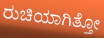
ರುಚಿಯಾಗಿತ್ತೋ